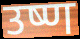
उष्ण